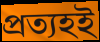
প্রত্যহই